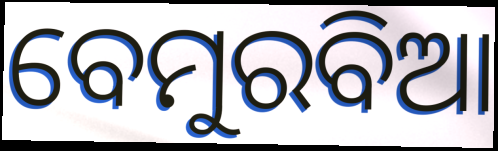
ବେମୁରବିଆ